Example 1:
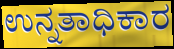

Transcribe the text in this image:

ಉನ್ನತಾಧಿಕಾರ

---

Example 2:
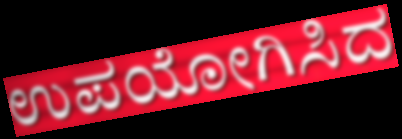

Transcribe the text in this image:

ಉಪಯೋಗಿಸಿದ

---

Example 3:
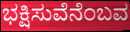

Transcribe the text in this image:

ಭಕ್ಷಿಸುವೆನೆಂಬವ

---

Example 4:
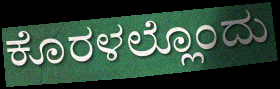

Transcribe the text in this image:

ಕೊರಳಲ್ಲೊಂದು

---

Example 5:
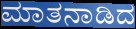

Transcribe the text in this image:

ಮಾತನಾಡಿದ